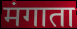
मंगाता